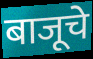
बाजूचे